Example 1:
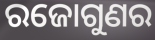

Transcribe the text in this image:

ରଜୋଗୁଣର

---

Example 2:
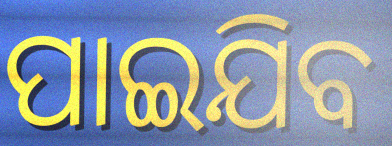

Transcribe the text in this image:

ପାଇଯିବ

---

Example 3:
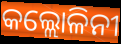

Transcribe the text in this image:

କଲ୍ଲୋଳିନୀ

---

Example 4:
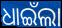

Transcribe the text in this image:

ଧାଇଁଲା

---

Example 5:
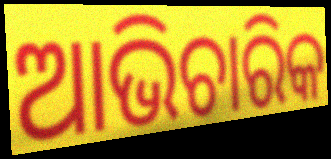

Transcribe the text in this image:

ଆଭିଚାରିକ